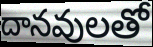
దానవులతో